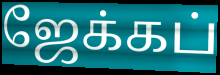
ஜேக்கப்